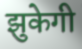
झुकेगी